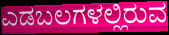
ಎಡಬಲಗಳಲ್ಲಿರುವ